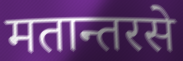
मतान्तरसे